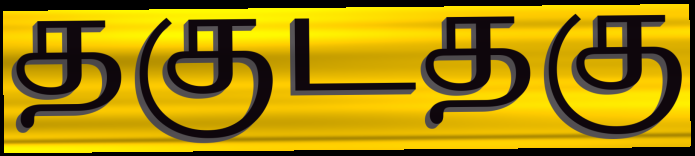
தகுடதகு